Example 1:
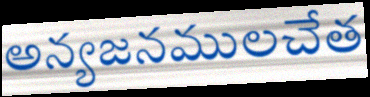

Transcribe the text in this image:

అన్యజనములచేత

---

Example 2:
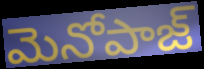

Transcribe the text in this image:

మెనోపాజ్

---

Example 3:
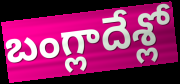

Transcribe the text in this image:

బంగ్లాదేశ్లో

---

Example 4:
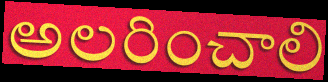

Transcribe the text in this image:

అలరించాలి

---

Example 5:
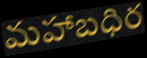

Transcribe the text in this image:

మహాబధిర